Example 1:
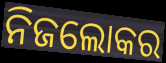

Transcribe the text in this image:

ନିଜଲୋକର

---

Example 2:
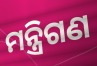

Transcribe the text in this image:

ମନ୍ତ୍ରିଗଣ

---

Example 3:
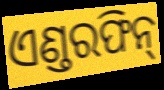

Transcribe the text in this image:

ଏଣ୍ଡରଫିନ୍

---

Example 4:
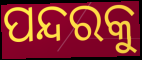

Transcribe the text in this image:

ପନ୍ଦରକୁ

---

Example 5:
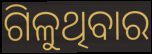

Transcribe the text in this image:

ଗିଳୁଥିବାର